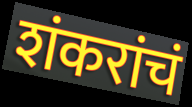
शंकरांचं